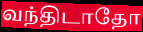
வந்திடாதோ